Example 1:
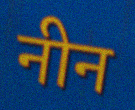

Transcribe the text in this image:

नीन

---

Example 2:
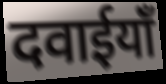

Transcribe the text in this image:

दवाईयाँ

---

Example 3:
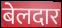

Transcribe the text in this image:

बेलदार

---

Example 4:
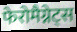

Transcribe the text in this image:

फेरोमैग्नेट्स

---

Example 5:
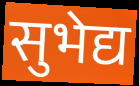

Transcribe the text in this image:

सुभेद्य